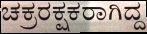
ಚಕ್ರರಕ್ಷಕರಾಗಿದ್ದ